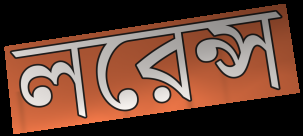
লরেন্স